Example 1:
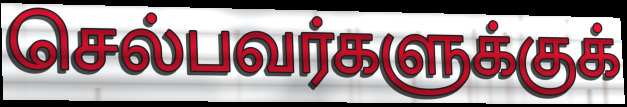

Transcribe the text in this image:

செல்பவர்களுக்குக்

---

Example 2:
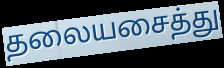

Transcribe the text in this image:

தலையசைத்து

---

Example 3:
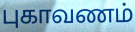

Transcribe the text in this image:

புகாவணம்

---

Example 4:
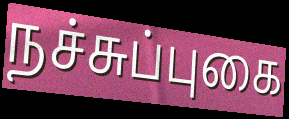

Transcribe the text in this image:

நச்சுப்புகை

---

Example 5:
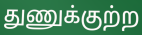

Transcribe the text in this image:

துணுக்குற்ற